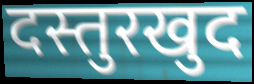
दस्तुरखुद